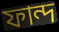
ফান্দ